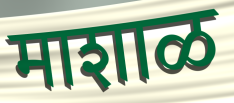
माशाळ